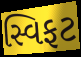
સ્વિફટ